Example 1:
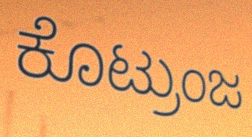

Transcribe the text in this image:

ಕೊಟ್ರುಂಜ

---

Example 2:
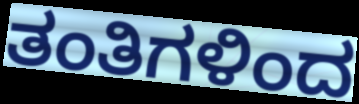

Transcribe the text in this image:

ತಂತಿಗಳಿಂದ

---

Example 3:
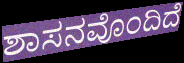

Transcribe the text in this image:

ಶಾಸನವೊಂದಿದೆ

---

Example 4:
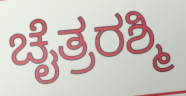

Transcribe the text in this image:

ಚೈತ್ರರಶ್ಮಿ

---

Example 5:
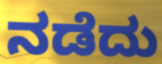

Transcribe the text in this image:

ನಡೆದು